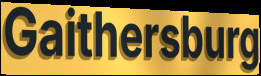
Gaithersburg